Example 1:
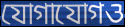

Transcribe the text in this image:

যোগাযোগও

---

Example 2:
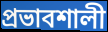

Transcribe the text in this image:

প্রভাবশালী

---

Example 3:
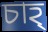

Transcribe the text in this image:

চাহ্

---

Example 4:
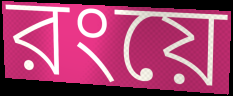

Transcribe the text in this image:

রংয়ে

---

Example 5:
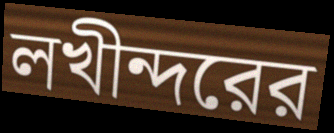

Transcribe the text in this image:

লখীন্দরের